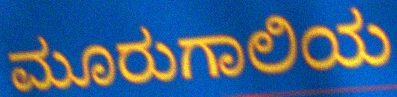
ಮೂರುಗಾಲಿಯ